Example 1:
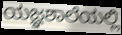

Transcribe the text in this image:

ಯಜ್ಞಶಾಲೆಯಲ್ಲಿ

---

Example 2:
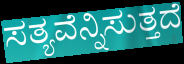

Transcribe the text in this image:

ಸತ್ಯವೆನ್ನಿಸುತ್ತದೆ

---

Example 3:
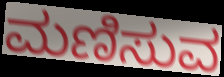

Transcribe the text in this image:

ಮಣಿಸುವ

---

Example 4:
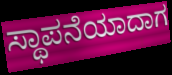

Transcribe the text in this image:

ಸ್ಥಾಪನೆಯಾದಾಗ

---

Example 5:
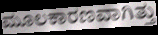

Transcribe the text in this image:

ಮೂಲಕಾರಣವಾಗಿತ್ತು